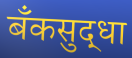
बँकसुद्धा